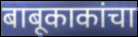
बाबूकाकांचा